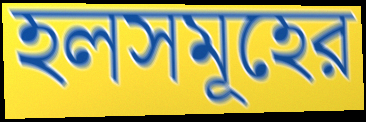
হলসমূহের